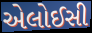
એલોઈસી